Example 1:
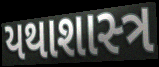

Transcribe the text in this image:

યથાશાસ્‍ત્ર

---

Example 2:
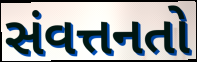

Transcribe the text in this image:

સંવત્તનતો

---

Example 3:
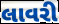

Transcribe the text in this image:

લાવરી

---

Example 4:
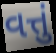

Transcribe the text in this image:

વત્તું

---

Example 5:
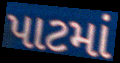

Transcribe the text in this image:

પાટમાં